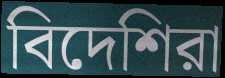
বিদেশিরা